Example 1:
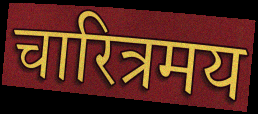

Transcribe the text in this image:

चारित्रमय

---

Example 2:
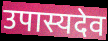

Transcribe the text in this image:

उपास्यदेव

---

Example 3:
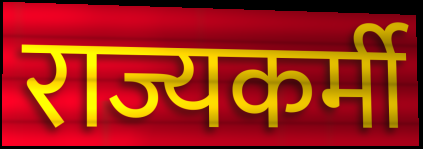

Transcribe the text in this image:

राज्यकर्मी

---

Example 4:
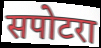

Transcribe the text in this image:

सपोटरा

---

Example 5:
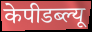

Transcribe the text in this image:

केपीडब्ल्यू